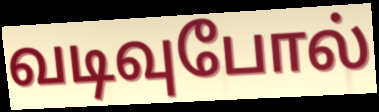
வடிவுபோல்